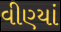
વીણ્યાં